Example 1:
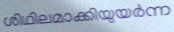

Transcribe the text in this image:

ശിഥിലമാക്കിയുയർന്ന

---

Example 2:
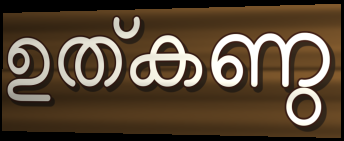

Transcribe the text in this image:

ഉത്കണ്ഠ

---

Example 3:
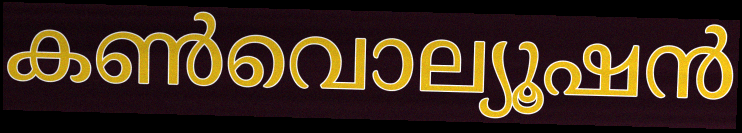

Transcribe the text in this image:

കൺവൊല്യൂഷൻ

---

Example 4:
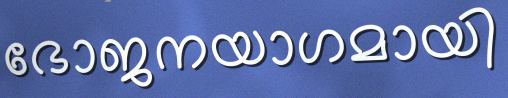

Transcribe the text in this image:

ഭോജനയാഗമായി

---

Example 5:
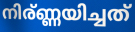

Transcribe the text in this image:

നിര്ണ്ണയിച്ചത്